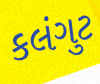
કલંગુટ